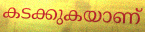
കടക്കുകയാണ്